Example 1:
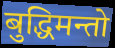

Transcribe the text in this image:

बुद्धिमन्तो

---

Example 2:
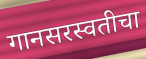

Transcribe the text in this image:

गानसरस्वतीचा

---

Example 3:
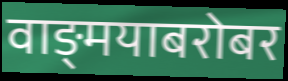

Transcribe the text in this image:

वाङ्मयाबरोबर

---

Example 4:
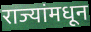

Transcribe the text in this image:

राज्यांमधून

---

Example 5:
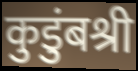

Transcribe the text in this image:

कुडुंबश्री